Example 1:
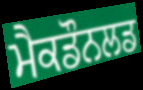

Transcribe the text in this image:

ਮੈਕਡੌਨਲਡ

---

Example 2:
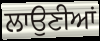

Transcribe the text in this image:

ਲਾਉਣੀਆਂ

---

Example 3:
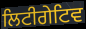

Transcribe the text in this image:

ਲਿਟੀਗੇਟਿਵ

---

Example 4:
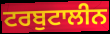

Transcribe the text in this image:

ਟਰਬੁਟਾਲੀਨ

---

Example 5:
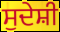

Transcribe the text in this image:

ਸੁਦੇਸ਼ੀ